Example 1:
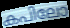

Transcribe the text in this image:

കപിലോ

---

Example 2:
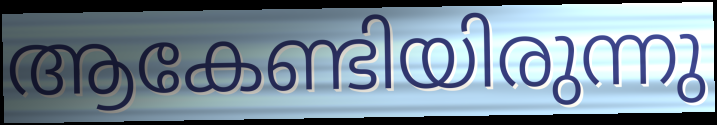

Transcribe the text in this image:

ആകേണ്ടിയിരുന്നു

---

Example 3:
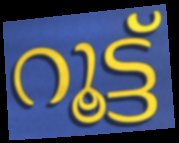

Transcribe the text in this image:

റൂട്ട്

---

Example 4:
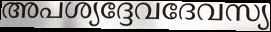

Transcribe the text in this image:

അപശ്യദ്ദേവദേവസ്യ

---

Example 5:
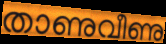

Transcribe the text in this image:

താണുവീണു